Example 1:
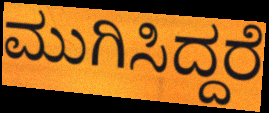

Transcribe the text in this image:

ಮುಗಿಸಿದ್ದರೆ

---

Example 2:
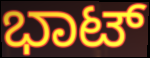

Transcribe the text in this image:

ಭಾಟ್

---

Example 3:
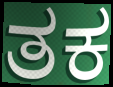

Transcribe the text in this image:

ತಕ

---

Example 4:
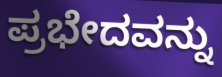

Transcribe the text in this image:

ಪ್ರಭೇದವನ್ನು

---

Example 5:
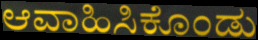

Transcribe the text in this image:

ಆವಾಹಿಸಿಕೊಂಡು